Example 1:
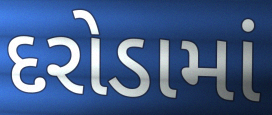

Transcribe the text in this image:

દરોડામાં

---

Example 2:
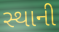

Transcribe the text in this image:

સ્થાની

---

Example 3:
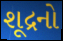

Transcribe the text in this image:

શૂદ્રનો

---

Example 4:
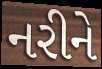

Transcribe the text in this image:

નરીને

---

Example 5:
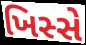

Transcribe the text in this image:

ખિસ્સે